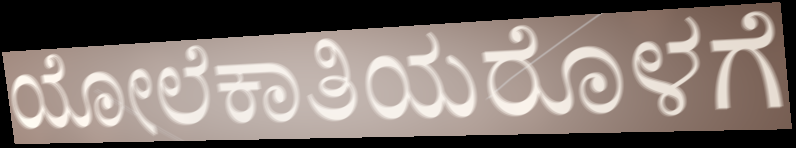
ಯೋಲೆಕಾತಿಯರೊಳಗೆ